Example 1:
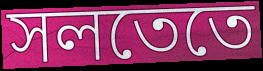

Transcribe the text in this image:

সলতেতে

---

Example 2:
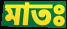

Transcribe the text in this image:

মাতঃ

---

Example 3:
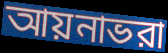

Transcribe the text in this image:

আয়নাভরা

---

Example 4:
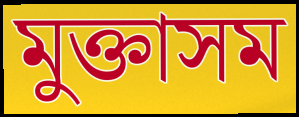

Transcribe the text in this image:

মুক্তাসম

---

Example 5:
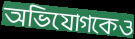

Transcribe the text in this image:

অভিযোগকেও